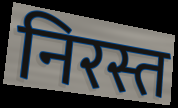
निरस्त